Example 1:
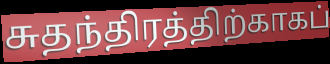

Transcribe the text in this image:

சுதந்திரத்திற்காகப்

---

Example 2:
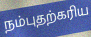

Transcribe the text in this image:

நம்புதற்கரிய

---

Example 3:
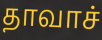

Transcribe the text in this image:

தாவாச்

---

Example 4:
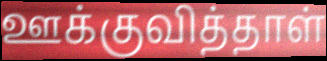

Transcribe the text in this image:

ஊக்குவித்தாள்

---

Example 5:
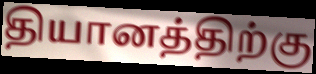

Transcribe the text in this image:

தியானத்திற்கு